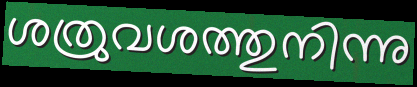
ശത്രുവശത്തുനിന്നു